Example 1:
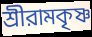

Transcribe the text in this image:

শ্রীরামকৃষ্ণ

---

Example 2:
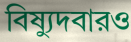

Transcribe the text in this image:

বিষ্যুদবারও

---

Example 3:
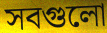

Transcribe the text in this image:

সবগুলো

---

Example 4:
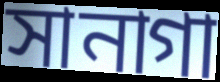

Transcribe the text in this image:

সানাগা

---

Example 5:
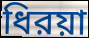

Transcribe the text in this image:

ধিরয়া